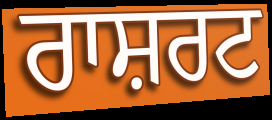
ਰਾਸ਼ਰਟ